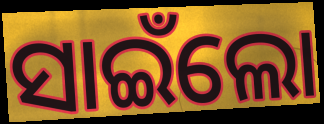
ସାଇଁଲୋ